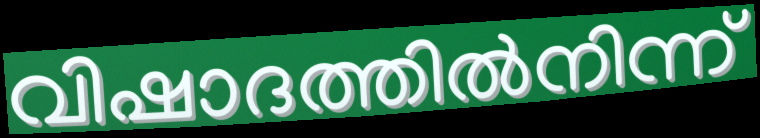
വിഷാദത്തിൽനിന്ന്